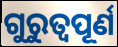
ଗୁରୁତ୍ୱପୂର୍ଣ